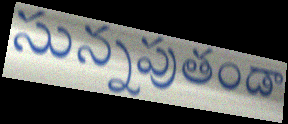
సున్నపుతండా